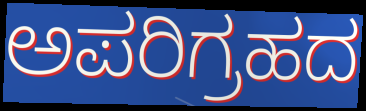
ಅಪರಿಗ್ರಹದ